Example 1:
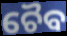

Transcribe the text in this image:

ଚୈବ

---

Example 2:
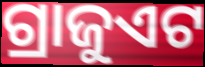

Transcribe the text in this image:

ଗ୍ରାଜୁଏଟ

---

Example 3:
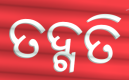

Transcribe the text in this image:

ତଦ୍ଗତି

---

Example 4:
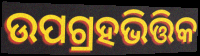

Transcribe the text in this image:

ଉପଗ୍ରହଭିତ୍ତିକ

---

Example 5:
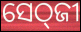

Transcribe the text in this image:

ସେଠ୍‌ଜୀ